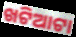
ଖଟିଆଟା